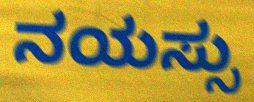
ನಯಸ್ಸು